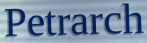
Petrarch